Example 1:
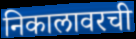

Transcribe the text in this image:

निकालावरची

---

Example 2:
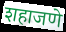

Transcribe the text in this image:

शहाजणे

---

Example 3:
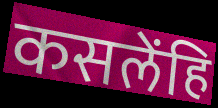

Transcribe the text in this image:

कसलेंहि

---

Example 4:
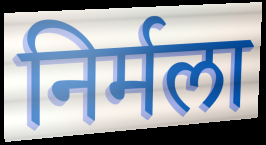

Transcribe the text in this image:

निर्मला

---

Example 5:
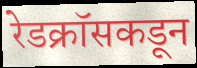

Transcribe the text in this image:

रेडक्रॉसकडून